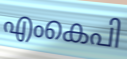
എംകെപി